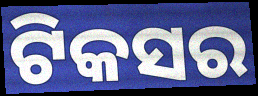
ଟିକସର